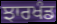
ਝਾਰਖੰਡ